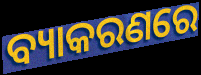
ବ୍ୟାକରଣରେ